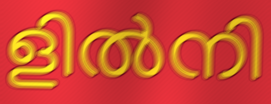
ളിൽനി